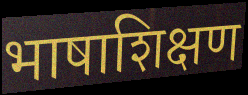
भाषाशिक्षण